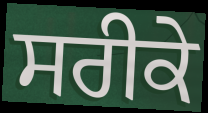
ਸਰੀਕੇ